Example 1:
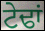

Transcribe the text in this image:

ਟੇਢਾਂ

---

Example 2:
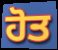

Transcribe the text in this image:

ਹੋਤ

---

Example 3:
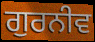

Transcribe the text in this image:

ਗੁਰਨੀਵ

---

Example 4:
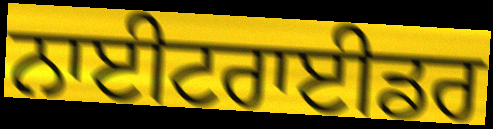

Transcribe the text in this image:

ਨਾਈਟਰਾਈਡਰ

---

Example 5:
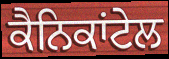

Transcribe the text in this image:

ਕੈਨਿਕਾਂਟੇਲ